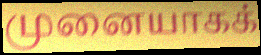
முனையாகக்